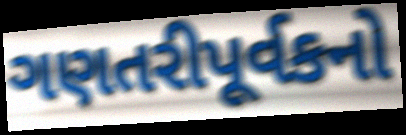
ગણતરીપૂર્વકનો